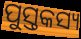
ପୁସ୍ତକସ୍ୟ